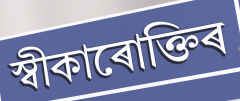
স্বীকাৰোক্তিৰ